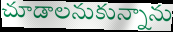
చూడాలనుకున్నాను